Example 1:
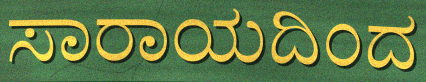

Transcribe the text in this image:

ಸಾರಾಯದಿಂದ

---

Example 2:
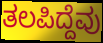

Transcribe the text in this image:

ತಲಪಿದ್ದೆವು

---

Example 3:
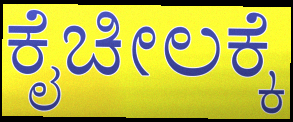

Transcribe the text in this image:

ಕೈಚೀಲಕ್ಕೆ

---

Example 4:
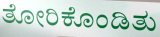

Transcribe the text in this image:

ತೋರಿಕೊಂಡಿತು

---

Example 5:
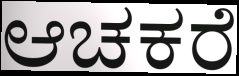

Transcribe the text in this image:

ಆಚಕರೆ